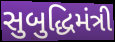
સુબુદ્ધિમંત્રી